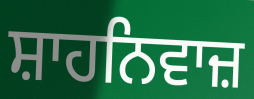
ਸ਼ਾਹਨਿਵਾਜ਼